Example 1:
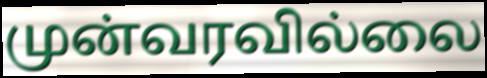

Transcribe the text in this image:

முன்வரவில்லை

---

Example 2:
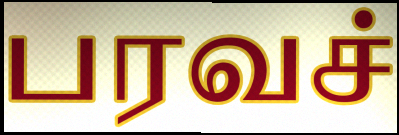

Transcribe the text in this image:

பரவச்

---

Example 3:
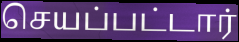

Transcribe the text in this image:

செயப்பட்டார்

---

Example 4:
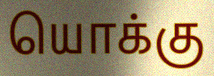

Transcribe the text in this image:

யொக்கு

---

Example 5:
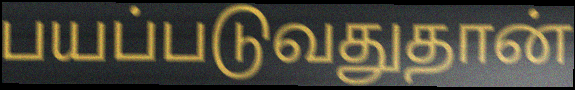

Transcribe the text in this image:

பயப்படுவதுதான்